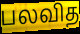
பலவித